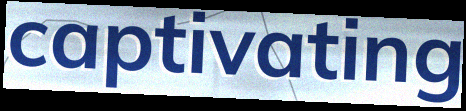
captivating